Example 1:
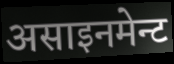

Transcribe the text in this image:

असाइनमेन्ट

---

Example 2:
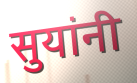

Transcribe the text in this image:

सुयांनी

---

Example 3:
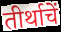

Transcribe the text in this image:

तीर्थाचें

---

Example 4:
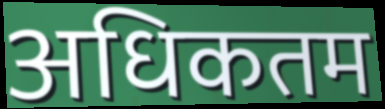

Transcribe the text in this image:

अधिकतम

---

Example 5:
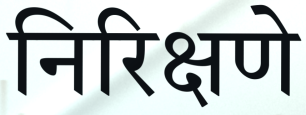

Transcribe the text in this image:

निरिक्षणे